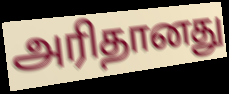
அரிதானது